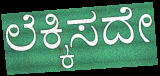
ಲೆಕ್ಕಿಸದೇ